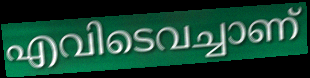
എവിടെവച്ചാണ്